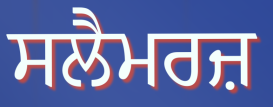
ਸਲੈਮਰਜ਼